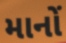
માનોં